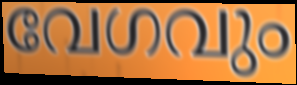
വേഗവും